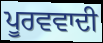
ਪੂਰਵਵਾਦੀ